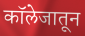
कॉलेजातून